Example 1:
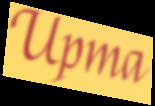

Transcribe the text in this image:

Upma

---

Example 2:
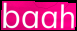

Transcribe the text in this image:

baah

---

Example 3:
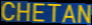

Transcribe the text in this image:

CHETAN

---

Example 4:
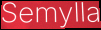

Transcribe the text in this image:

Semylla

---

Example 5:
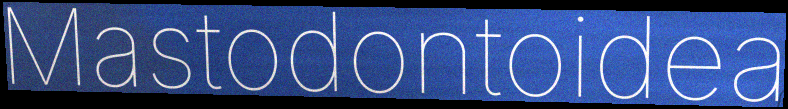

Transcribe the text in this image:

Mastodontoidea